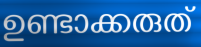
ഉണ്ടാക്കരുത്